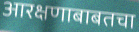
आरक्षणाबाबतचा